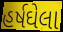
હર્ષઘેલા